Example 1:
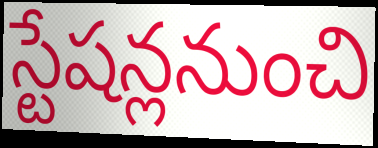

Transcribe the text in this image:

స్టేషన్లనుంచి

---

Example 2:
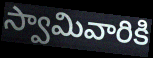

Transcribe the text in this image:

స్వామివారికి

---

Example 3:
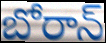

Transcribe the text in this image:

బోరాన్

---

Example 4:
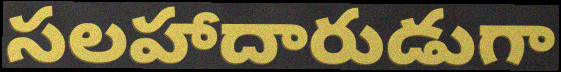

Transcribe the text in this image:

సలహాదారుడుగా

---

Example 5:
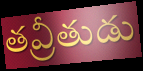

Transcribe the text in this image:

తవ్రీతుడు